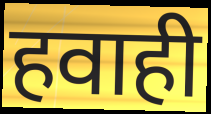
हवाही